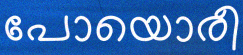
പോയൊരീ